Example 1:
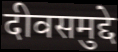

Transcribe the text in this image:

दीवसमुद्दे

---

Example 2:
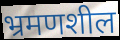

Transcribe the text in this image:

भ्रमणशील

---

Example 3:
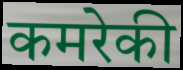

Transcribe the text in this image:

कमरेकी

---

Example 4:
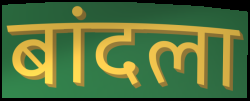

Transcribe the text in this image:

बांदला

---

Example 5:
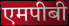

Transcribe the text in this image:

एमपीबी